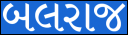
બલરાજ